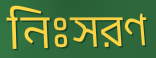
নিঃসরণ